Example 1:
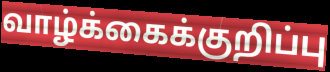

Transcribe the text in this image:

வாழ்க்கைக்குறிப்பு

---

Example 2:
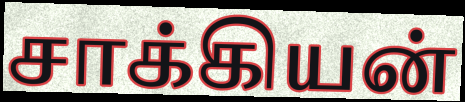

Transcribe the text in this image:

சாக்கியன்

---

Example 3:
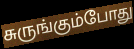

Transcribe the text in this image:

சுருங்கும்போது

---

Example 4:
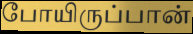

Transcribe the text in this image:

போயிருப்பான்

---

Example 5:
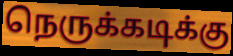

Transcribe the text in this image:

நெருக்கடிக்கு